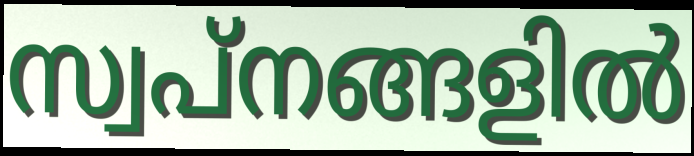
സ്വപ്നങ്ങളിൽ